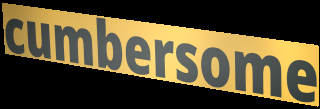
cumbersome